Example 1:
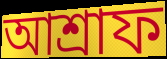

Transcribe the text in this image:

আশ্রাফ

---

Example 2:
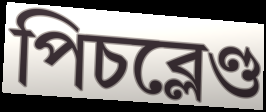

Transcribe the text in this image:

পিচব্লেণ্ড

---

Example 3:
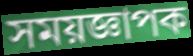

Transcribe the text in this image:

সময়জ্ঞাপক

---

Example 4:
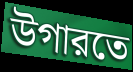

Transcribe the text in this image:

উগারতে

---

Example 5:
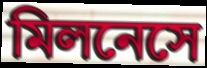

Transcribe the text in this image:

মিলনেসে